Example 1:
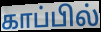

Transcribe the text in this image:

காப்பில்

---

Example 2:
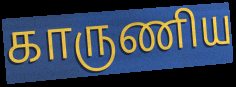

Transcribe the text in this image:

காருணிய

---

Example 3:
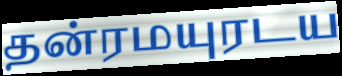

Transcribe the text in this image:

தன்ரமயுரடய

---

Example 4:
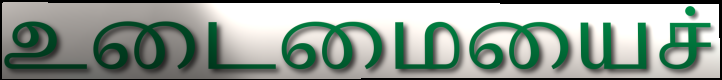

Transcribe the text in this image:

உடைமையைச்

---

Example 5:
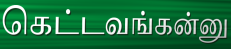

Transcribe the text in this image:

கெட்டவங்கன்னு